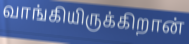
வாங்கியிருக்கிறான்